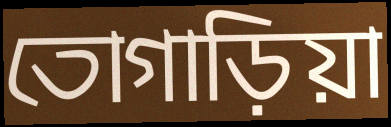
তোগাড়িয়া